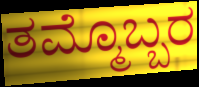
ತಮ್ಮೊಬ್ಬರ